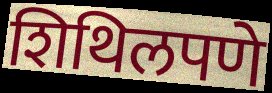
शिथिलपणे